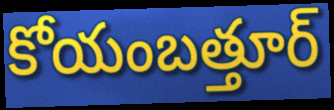
కోయంబత్తూర్